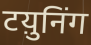
टय़ुनिंग